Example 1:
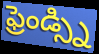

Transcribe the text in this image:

ఫ్రెండ్స్ని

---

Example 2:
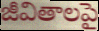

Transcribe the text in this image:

జీవితాలపై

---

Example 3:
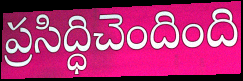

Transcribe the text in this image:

ప్రసిద్ధిచెందింది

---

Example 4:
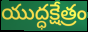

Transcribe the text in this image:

యుద్ధక్షేత్రం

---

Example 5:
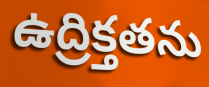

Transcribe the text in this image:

ఉద్రిక్తతను